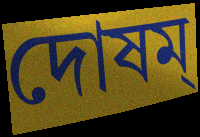
দোষম্